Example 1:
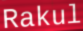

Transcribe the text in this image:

Rakul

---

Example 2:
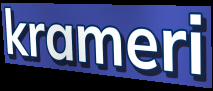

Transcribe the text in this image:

krameri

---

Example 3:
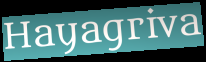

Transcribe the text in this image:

Hayagriva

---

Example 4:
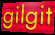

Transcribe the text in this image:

gilgit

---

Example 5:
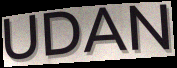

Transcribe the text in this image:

UDAN